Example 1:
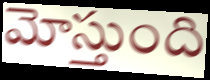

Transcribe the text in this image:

మోస్తుంది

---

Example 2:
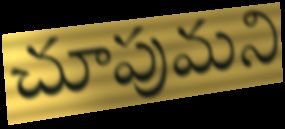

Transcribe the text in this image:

చూపుమని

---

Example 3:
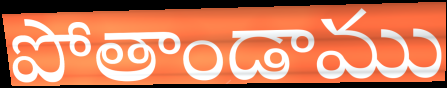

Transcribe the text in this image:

పోతాండాము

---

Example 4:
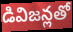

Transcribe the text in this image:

డివిజన్లతో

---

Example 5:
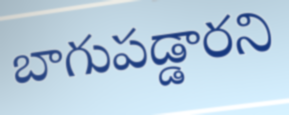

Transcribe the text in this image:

బాగుపడ్డారని